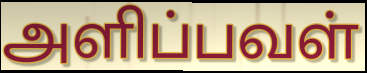
அளிப்பவள்